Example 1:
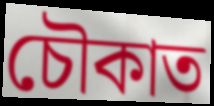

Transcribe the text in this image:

চৌকাত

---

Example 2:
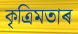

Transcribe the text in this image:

কৃত্ৰিমতাৰ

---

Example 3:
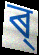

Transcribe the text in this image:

ৰ্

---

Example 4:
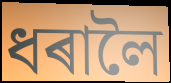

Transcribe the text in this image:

ধৰালৈ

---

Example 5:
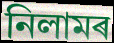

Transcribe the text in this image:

নিলামৰ